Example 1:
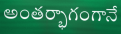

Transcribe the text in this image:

అంతర్భాగంగానే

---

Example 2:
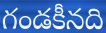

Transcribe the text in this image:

గండకీనది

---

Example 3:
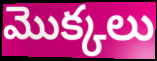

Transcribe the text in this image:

మొక్కలు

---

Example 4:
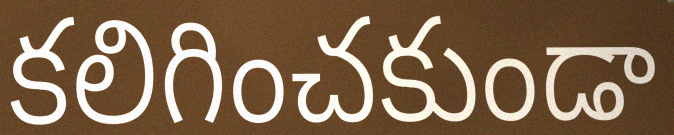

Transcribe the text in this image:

కలిగించకుండా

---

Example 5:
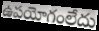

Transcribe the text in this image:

ఉపయోగంలేదు